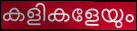
കളികളേയും